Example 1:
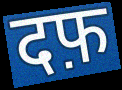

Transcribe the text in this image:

दफ़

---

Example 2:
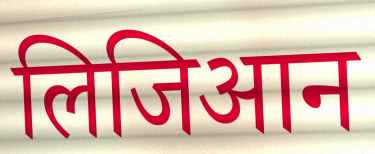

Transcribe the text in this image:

लिजिआन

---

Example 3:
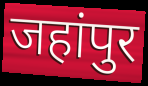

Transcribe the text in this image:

जहांपुर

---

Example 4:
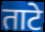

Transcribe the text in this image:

ताटे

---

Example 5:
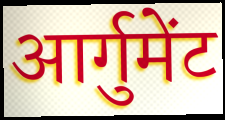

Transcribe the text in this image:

आर्गुमेंट